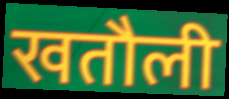
खतौली